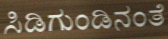
ಸಿಡಿಗುಂಡಿನಂತೆ